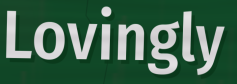
Lovingly